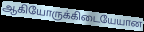
ஆகியோருக்கிடையேயான